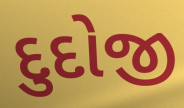
દુદોજી